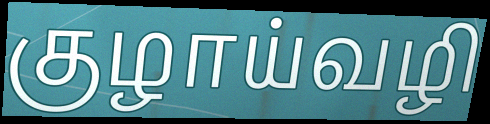
குழாய்வழி